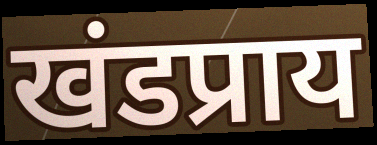
खंडप्राय